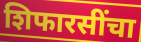
शिफारसींचा